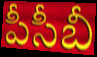
పీసీబీ